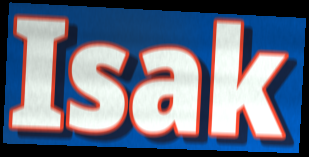
Isak